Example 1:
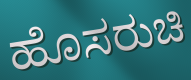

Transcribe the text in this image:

ಹೊಸರುಚಿ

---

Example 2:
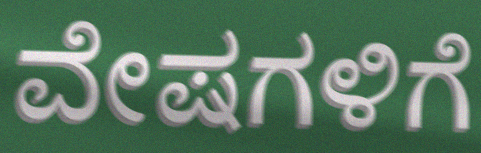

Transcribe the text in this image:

ವೇಷಗಳಿಗೆ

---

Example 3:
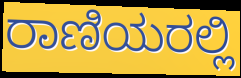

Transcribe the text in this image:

ರಾಣಿಯರಲ್ಲಿ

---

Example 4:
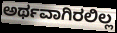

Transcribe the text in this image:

ಅರ್ಥವಾಗಿರಲಿಲ್ಲ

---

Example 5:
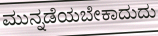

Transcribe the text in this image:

ಮುನ್ನಡೆಯಬೇಕಾದುದು